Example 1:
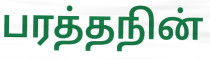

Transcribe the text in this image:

பரத்தநின்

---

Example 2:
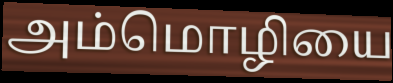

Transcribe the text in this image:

அம்மொழியை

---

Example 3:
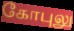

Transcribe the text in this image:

கோபுலு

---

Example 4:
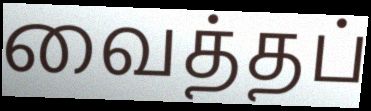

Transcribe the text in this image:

வைத்தப்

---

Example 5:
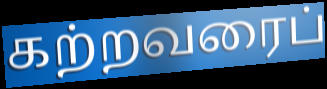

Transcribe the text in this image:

கற்றவரைப்